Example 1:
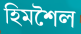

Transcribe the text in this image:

হিমশৈল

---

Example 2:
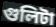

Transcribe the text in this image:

গুলিটা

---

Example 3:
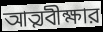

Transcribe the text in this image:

আত্মবীক্ষার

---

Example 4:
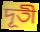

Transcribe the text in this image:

দূতী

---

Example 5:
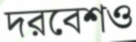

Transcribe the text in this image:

দরবেশও